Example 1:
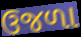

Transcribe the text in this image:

ઉજળા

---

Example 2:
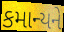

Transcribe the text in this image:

કમાન્યને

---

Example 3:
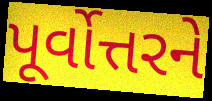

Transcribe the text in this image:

પૂર્વોત્તરને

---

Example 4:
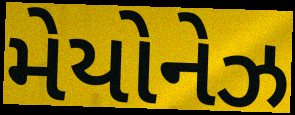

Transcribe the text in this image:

મેયોનેઝ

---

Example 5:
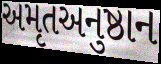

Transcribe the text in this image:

અમૃતઅનુષ્ઠાન